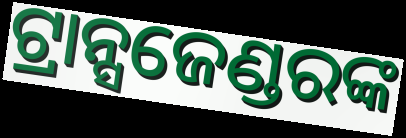
ଟ୍ରାନ୍ସଜେଣ୍ଡରଙ୍କ